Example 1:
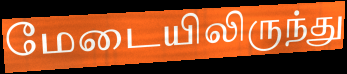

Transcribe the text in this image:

மேடையிலிருந்து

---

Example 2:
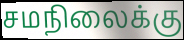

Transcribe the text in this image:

சமநிலைக்கு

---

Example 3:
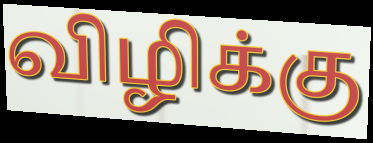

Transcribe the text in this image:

விழிக்கு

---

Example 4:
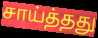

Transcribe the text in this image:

சாய்த்தது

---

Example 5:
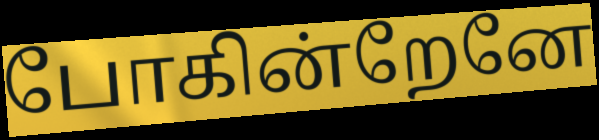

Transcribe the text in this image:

போகின்றேனே